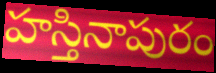
హస్తినాపురం